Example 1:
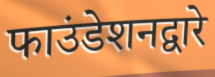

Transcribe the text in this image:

फाउंडेशनद्वारे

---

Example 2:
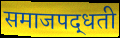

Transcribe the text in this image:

समाजपद्धती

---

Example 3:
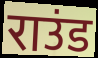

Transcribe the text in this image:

राउंड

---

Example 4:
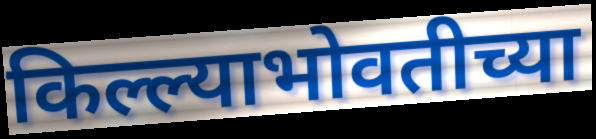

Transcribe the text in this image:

किल्ल्याभोवतीच्या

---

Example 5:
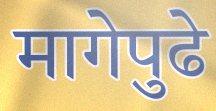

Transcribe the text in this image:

मागेपुढे